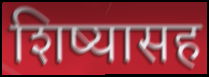
शिष्यासह